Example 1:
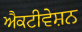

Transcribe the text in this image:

ਐਕਟੀਵੇਸ਼ਨ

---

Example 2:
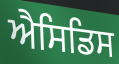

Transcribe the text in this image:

ਐਸਿਡਿਸ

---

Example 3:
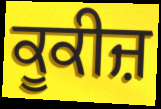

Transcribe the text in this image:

ਕੂਕੀਜ਼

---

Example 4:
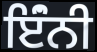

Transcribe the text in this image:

ਇੰਂਨੀ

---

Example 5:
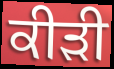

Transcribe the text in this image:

ਕੀੜੀ